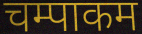
चम्पाकम